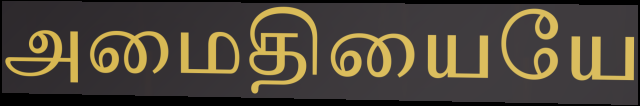
அமைதியையே